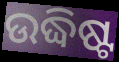
ଉଦ୍ଧିଷ୍ଟ